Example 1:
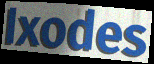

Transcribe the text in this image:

Ixodes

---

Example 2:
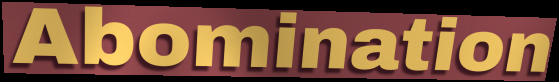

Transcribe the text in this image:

Abomination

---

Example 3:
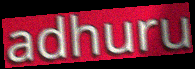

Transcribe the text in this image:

adhuru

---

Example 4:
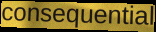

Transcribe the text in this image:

consequential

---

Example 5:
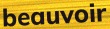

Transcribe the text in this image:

beauvoir